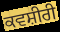
ਕਵਸ਼ੀਰੀ